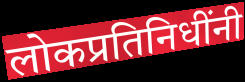
लोकप्रतिनिधींनी